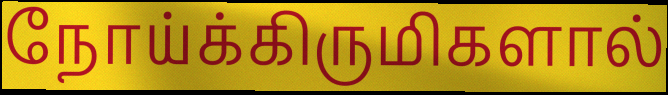
நோய்க்கிருமிகளால்